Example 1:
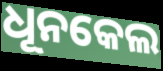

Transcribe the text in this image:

ଧୂନକେଲ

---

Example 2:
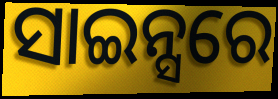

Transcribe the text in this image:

ସାଇନ୍ସରେ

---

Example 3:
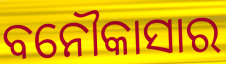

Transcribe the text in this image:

ବନୌକାସାର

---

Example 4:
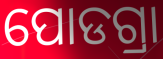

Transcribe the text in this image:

ପୋଡଗ୍ରା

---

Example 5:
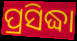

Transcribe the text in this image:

ପ୍ରସିଦ୍ଧା